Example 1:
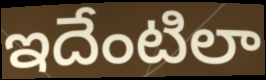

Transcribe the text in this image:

ఇదేంటిలా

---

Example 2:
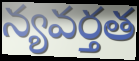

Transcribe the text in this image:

న్యవర్తత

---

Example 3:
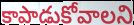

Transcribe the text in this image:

కాపాడుకోవాలని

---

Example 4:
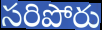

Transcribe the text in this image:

సరిపోరు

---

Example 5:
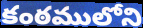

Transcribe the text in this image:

కంఠములోని